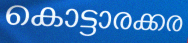
കൊട്ടാരക്കര